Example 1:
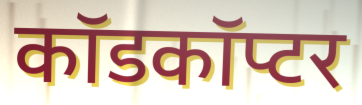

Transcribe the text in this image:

कॉडकॉप्टर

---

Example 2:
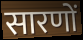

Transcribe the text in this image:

सारणों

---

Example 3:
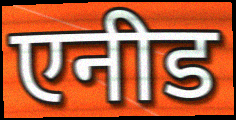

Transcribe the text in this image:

एनीड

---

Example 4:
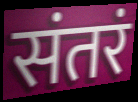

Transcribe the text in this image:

संतरं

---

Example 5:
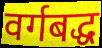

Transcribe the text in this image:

वर्गबद्ध